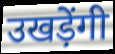
उखड़ेंगी